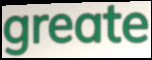
greate